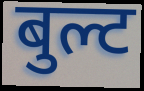
बुल्ट